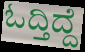
ಓದ್ತಿದ್ದೆ